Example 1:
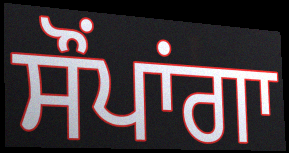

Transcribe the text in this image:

ਸੌਂਪਾਂਗਾ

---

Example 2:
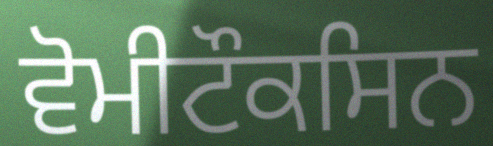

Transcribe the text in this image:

ਵੋਮੀਟੌਕਸਿਨ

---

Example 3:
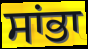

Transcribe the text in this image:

ਸਾਂਭਾ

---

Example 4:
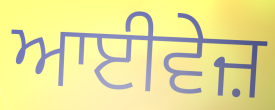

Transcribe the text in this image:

ਆਈਵੇਜ਼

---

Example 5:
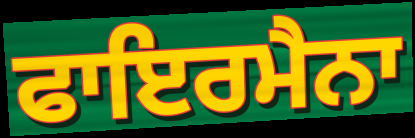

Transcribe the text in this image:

ਫਾਇਰਮੈਨਾ